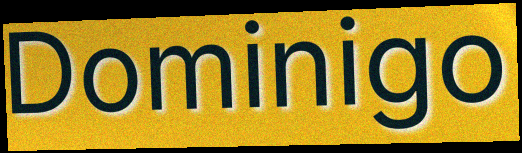
Dominigo